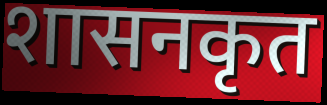
शासनकृत